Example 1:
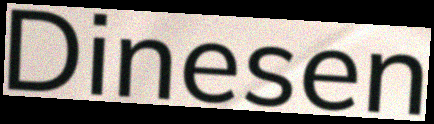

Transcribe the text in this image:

Dinesen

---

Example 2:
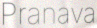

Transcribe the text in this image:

Pranava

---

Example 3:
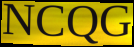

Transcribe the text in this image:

NCQG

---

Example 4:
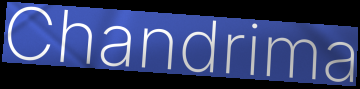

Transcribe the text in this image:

Chandrima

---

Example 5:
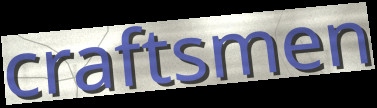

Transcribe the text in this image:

craftsmen